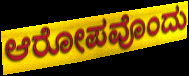
ಆರೋಪವೊಂದು